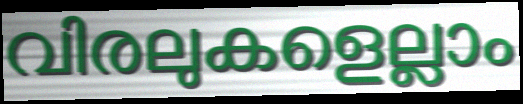
വിരലുകളെല്ലാം